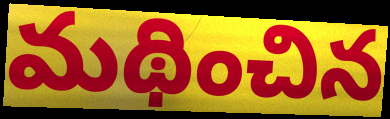
మథించిన